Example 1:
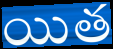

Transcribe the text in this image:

యిత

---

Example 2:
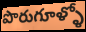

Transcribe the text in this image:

పొరుగూళ్ళో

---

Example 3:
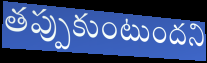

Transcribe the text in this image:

తప్పుకుంటుందని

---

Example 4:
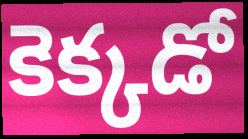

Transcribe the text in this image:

కెక్కడో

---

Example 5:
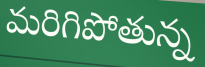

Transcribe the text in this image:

మరిగిపోతున్న